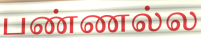
பண்ணல்ல